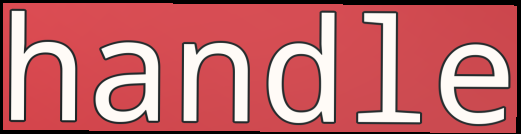
handle